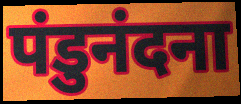
पंडुनंदना